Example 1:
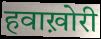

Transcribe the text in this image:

हवाख़ोरी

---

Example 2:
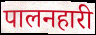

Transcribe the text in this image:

पालनहारी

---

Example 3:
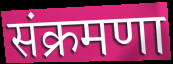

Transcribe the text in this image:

संक्रमणा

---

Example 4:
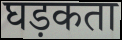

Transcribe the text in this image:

घड़कता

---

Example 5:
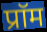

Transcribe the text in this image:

प्रॉम